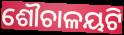
ଶୌଚାଳୟଟି